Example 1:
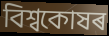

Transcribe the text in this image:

বিশ্বকোষৰ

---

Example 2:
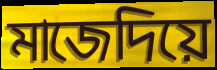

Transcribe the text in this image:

মাজেদিয়ে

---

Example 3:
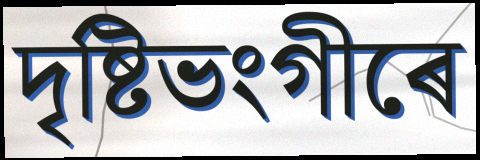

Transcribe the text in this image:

দৃষ্টিভংগীৰে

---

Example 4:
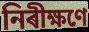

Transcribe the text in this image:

নিৰীক্ষণে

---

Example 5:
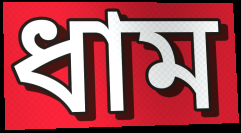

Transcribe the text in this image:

ধাম